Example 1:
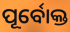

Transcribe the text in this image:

ପୂର୍ବୋକ୍ତ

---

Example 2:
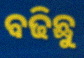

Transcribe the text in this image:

ବଢିଛୁ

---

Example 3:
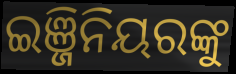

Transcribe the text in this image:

ଇଞ୍ଜିନିୟରଙ୍କୁ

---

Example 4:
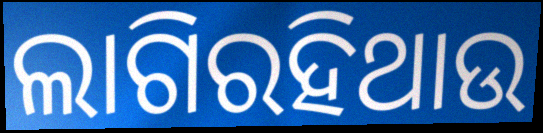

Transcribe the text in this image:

ଲାଗିରହିଥାଉ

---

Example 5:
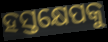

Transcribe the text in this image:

ହସ୍ତକ୍ଷେପକୁ